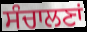
ਸੰਚਾਲਣਾਂ